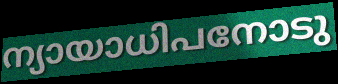
ന്യായാധിപനോടു